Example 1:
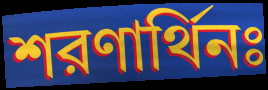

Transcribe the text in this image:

শরণার্থিনঃ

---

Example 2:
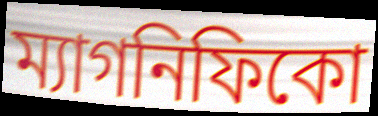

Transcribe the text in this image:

ম্যাগনিফিকো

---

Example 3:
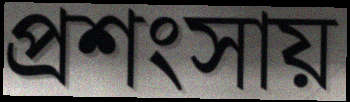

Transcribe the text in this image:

প্রশংসায়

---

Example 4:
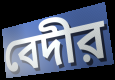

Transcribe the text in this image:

বেদীর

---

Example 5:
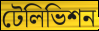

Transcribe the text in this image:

টেলিভিশন